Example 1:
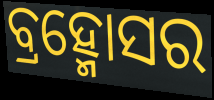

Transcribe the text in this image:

ବ୍ରହ୍ମୋସର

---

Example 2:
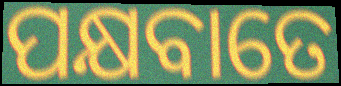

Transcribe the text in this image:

ପକ୍ଷବାତେ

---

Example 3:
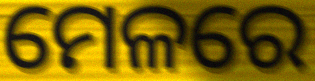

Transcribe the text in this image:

ମେଳରେ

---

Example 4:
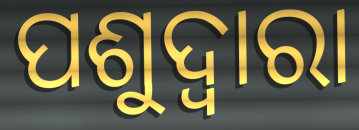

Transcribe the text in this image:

ପଶୁଦ୍ୱାରା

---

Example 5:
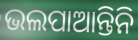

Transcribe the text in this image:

ଭଲପାଆନ୍ତିନି